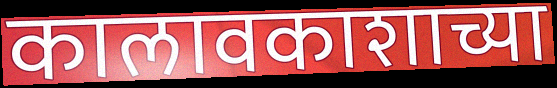
कालावकाशाच्या